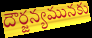
దౌర్జన్యమునకు